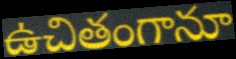
ఉచితంగానూ